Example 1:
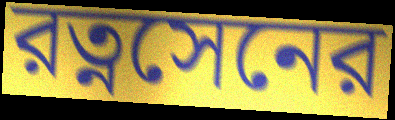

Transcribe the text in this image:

রত্নসেনের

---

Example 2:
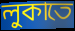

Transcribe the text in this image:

লুকাতে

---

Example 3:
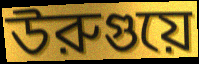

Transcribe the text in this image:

উরুগুয়ে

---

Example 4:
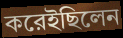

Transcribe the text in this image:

করেইছিলেন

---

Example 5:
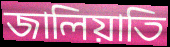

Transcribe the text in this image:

জালিয়াতি